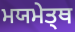
ਮਯਮੇਤ੍ਥ